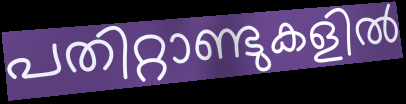
പതിറ്റാണ്ടുകളിൽ